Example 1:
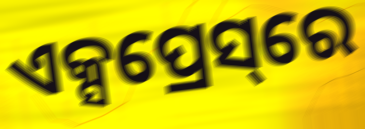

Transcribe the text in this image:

ଏକ୍ସପ୍ରେସ୍‌ରେ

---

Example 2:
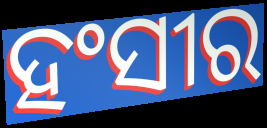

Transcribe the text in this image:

ହଂସୀର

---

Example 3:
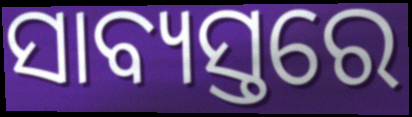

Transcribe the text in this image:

ସାବ୍ୟସ୍ତରେ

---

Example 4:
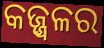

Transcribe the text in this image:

କଜ୍ଜ୍ୱଳର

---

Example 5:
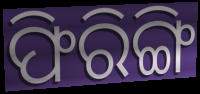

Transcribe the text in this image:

ଫିରିଙ୍ଗି